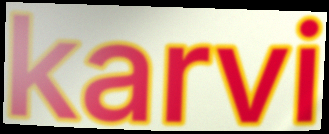
karvi